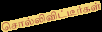
சொல்லிவிட்டீர்கள்